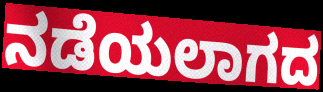
ನಡೆಯಲಾಗದ